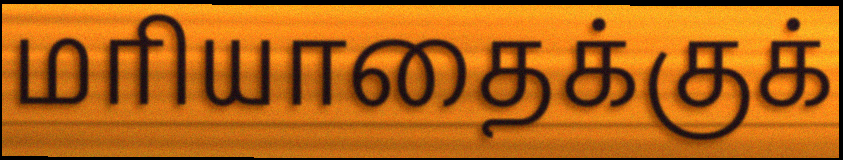
மரியாதைக்குக்